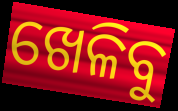
ଖେଳିବୁ